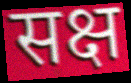
सक्ष